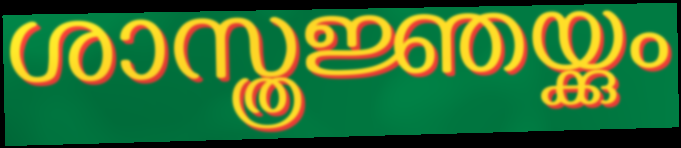
ശാസ്ത്രജ്ഞയ്ക്കും